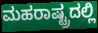
ಮಹರಾಷ್ಟ್ರದಲ್ಲಿ